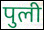
पुली